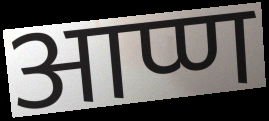
आप्ण